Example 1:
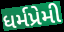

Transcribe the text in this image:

ધર્મપ્રેમી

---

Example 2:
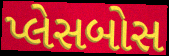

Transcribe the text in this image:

પ્લેસબોસ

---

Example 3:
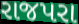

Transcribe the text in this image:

રાજપરા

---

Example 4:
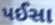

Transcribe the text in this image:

પઈસા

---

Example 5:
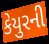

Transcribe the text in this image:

કેયુરની